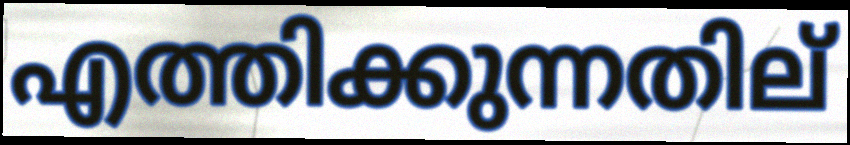
എത്തിക്കുന്നതില്